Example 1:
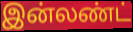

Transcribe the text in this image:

இன்லண்ட்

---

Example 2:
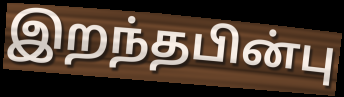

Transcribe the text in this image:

இறந்தபின்பு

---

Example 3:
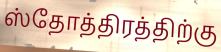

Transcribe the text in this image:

ஸ்தோத்திரத்திற்கு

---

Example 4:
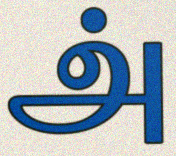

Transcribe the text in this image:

அ்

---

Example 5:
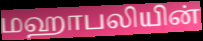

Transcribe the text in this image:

மஹாபலியின்